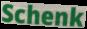
Schenk